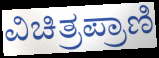
ವಿಚಿತ್ರಪ್ರಾಣಿ